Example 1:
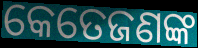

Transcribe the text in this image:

କେତେଜଣଙ୍କ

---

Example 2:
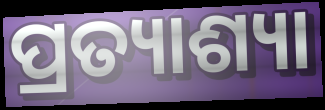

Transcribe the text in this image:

ପ୍ରତ୍ୟାଶ୍ୟା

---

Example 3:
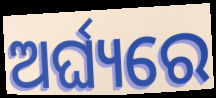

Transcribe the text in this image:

ଅର୍ଘ୍ୟରେ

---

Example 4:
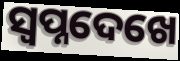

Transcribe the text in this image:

ସ୍ୱପ୍ନଦେଖେ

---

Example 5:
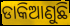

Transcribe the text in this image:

ଡାକିଆଣୁଛି